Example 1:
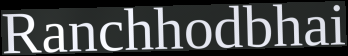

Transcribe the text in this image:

Ranchhodbhai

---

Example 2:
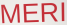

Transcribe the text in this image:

MERI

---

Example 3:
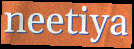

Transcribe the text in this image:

neetiya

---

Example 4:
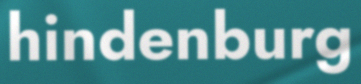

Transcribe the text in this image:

hindenburg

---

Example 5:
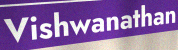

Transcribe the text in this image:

Vishwanathan